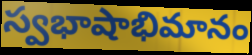
స్వభాషాభిమానం